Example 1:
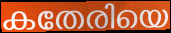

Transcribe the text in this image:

കതേരിയെ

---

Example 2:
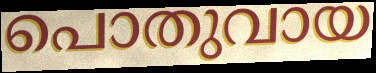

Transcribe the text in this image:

പൊതുവായ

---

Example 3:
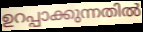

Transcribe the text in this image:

ഉറപ്പാക്കുന്നതിൽ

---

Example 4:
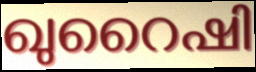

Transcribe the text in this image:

ഖുറൈഷി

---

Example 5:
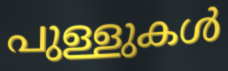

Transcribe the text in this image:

പുള്ളുകൾ